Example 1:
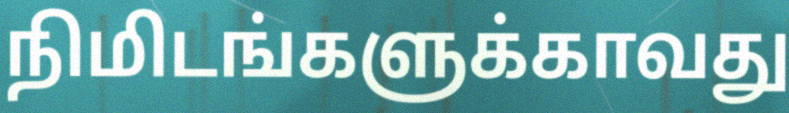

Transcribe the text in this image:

நிமிடங்களுக்காவது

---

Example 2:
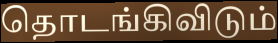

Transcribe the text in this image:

தொடங்கிவிடும்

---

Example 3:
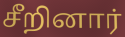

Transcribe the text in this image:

சீறினார்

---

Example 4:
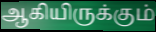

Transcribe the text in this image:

ஆகியிருக்கும்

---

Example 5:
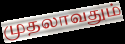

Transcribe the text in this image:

முதலாவதும்